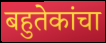
बहुतेकांचा